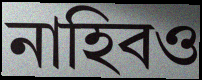
নাহিবও